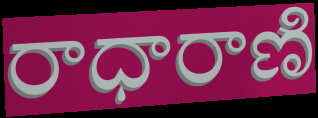
రాధారాణి